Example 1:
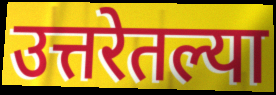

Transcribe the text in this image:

उत्तरेतल्या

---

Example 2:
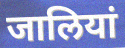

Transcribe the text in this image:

जालियां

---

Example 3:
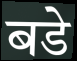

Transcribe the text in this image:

बडे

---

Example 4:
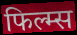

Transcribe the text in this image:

फिल्म्स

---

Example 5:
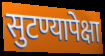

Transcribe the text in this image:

सुटण्यापेक्षा